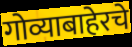
गोव्याबाहेरचे